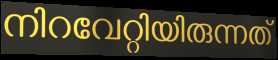
നിറവേറ്റിയിരുന്നത്